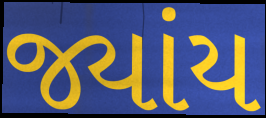
જ્યાંય